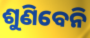
ଶୁଣିବେନି